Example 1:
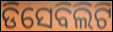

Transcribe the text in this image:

ଡିସେବିଲିଟି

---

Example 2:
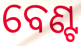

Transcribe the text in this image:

ବେଣ୍ଟ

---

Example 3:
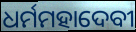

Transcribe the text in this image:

ଧର୍ମମହାଦେବୀ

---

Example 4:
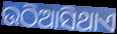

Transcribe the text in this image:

ଉଠିଆସିଥାଏ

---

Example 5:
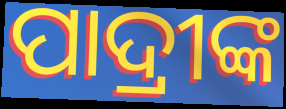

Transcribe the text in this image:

ପାଦ୍ରୀଙ୍କ